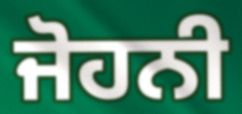
ਜੋਹਨੀ